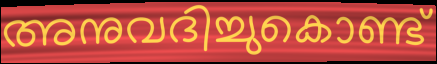
അനുവദിച്ചുകൊണ്ട്